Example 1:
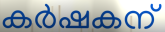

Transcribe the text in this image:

കർഷകന്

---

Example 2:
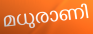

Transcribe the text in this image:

മധുരാണി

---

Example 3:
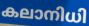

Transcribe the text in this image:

കലാനിധി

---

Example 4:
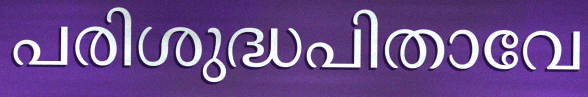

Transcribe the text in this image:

പരിശുദ്ധപിതാവേ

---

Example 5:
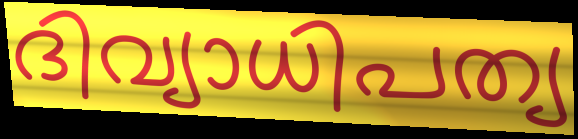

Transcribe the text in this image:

ദിവ്യാധിപത്യ